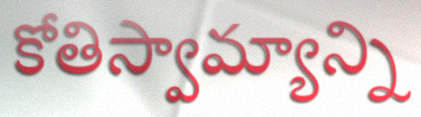
కోతిస్వామ్యాన్ని